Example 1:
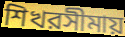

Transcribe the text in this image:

শিখরসীমায়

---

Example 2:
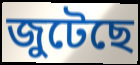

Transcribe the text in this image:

জুটেছে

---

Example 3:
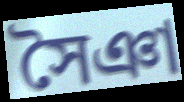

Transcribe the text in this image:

সৈঞা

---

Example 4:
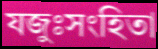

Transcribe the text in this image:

যজুঃসংহিতা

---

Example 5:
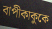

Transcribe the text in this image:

বাপীকাকুকে